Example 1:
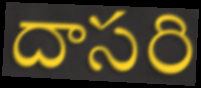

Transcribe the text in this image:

దాసరి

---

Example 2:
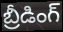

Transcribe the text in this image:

బ్రీడింగ్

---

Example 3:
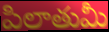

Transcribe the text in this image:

పిలాతుమీ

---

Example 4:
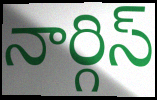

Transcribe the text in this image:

నార్గిస్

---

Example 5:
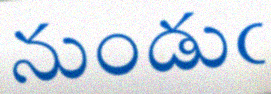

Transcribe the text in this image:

నుండుఁ